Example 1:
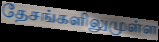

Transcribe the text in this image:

தேசங்களிலுமுள்ள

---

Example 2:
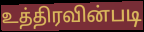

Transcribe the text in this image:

உத்திரவின்படி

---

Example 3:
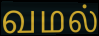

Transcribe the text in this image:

வமல்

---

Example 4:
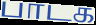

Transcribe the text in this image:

பாடக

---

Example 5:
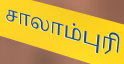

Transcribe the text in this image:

சாலாம்புரி